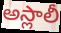
అస్లాలీ